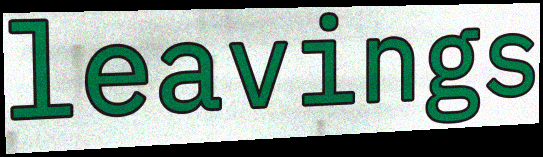
leavings